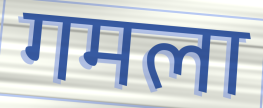
गमला